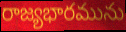
రాజ్యభారమును